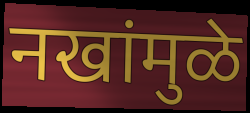
नखांमुळे